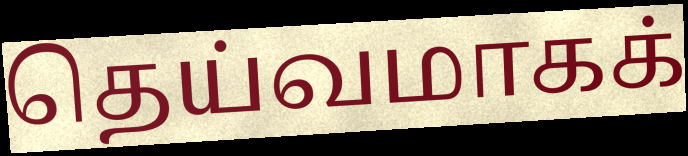
தெய்வமாகக்